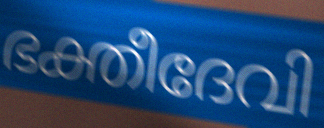
ഭക്തീദേവി